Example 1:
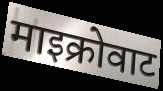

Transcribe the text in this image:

माइक्रोवाट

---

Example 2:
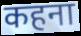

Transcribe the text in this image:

कहना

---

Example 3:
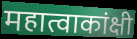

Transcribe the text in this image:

महात्वाकांक्षी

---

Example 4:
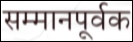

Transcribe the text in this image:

सम्मानपूर्वक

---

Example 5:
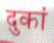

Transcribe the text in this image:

दुकां